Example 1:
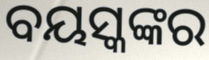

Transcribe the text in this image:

ବୟସ୍କଙ୍କର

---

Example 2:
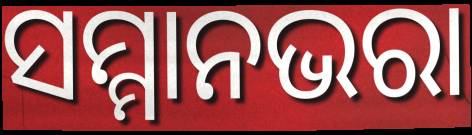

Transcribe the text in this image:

ସମ୍ମାନଭରା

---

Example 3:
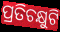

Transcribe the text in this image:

ପ୍ରତିଚକ୍ଷୁଟି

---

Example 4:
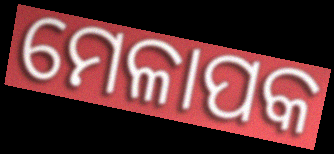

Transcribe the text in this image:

ମେଳାପକ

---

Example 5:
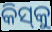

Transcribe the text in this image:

କିସ୍‌କୁ